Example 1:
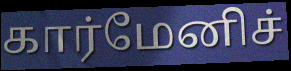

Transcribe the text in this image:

கார்மேனிச்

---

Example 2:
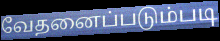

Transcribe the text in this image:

வேதனைப்படும்படி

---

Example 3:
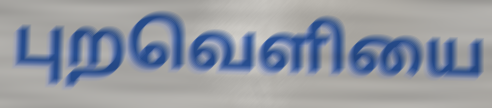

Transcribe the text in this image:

புறவெளியை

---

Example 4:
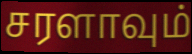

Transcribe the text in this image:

சரளாவும்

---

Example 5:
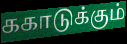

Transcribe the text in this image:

ககாடுக்கும்